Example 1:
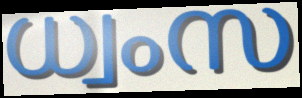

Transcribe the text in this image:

ധ്വംസ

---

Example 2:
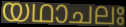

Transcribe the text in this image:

യഥാചലഃ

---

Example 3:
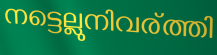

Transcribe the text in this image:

നട്ടെല്ലുനിവര്ത്തി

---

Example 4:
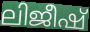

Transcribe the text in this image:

ലിജീഷ്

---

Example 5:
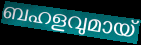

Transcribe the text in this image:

ബഹളവുമായ്